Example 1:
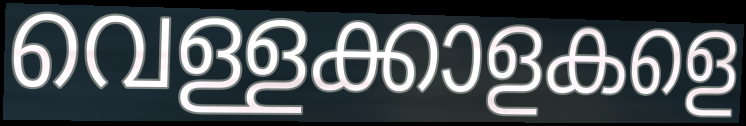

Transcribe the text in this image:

വെള്ളക്കാളകളെ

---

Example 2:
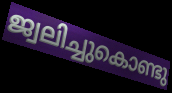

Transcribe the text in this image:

ജ്വലിച്ചുകൊണ്ടു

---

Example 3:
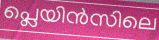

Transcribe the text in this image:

പ്ലെയിൻസിലെ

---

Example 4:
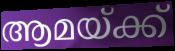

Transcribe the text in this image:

ആമയ്ക്ക്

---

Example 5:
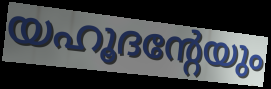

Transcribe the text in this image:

യഹൂദന്റേയും